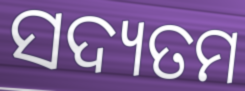
ସଦ୍ୟତମ